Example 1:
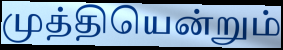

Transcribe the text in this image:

முத்தியென்றும்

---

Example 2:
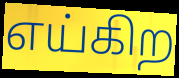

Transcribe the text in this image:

எய்கிற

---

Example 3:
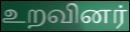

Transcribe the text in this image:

உறவினர்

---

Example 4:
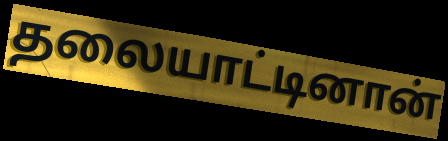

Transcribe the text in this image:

தலையாட்டினான்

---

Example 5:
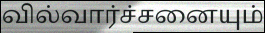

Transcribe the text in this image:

வில்வார்ச்சனையும்